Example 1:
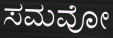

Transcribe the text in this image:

ಸಮವೋ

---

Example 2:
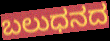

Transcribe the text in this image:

ಬಲುಧನದ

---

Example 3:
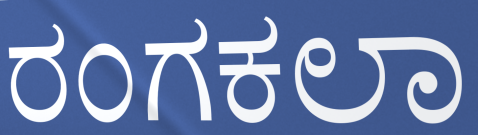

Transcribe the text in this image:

ರಂಗಕಲಾ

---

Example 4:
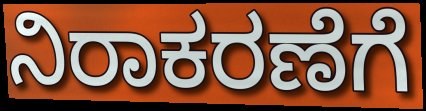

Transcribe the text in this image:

ನಿರಾಕರಣೆಗೆ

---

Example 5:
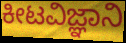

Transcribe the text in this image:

ಕೀಟವಿಜ್ಞಾನಿ